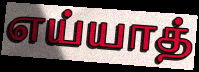
எய்யாத்